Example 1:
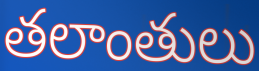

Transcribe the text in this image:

తలాంతులు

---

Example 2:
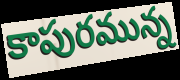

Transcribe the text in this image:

కాపురమున్న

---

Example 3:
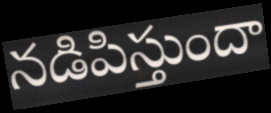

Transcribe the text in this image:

నడిపిస్తుందా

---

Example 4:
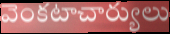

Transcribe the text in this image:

వెంకటాచార్యులు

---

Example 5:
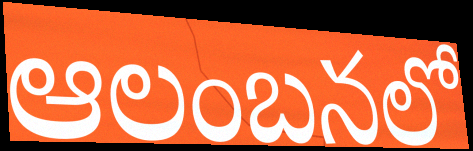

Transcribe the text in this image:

ఆలంబనలో